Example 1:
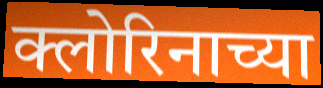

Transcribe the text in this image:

क्लोरिनाच्या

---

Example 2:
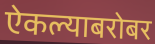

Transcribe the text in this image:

ऐकल्याबरोबर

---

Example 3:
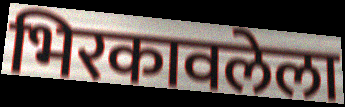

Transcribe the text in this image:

भिरकावलेला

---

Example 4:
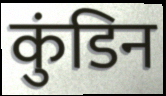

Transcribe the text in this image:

कुंडिन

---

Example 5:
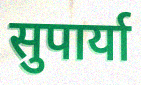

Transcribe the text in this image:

सुपार्या